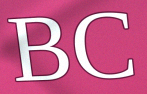
BC